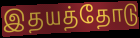
இதயத்தோடு